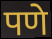
पणे